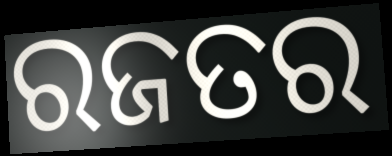
ରଜତର